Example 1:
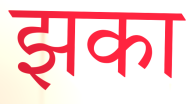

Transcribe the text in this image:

झका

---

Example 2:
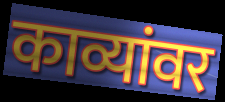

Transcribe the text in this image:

काव्यांवर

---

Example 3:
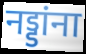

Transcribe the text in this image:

नड्डांना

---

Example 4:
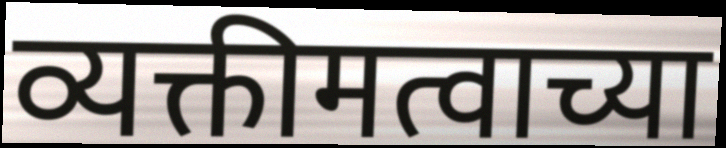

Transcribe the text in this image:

व्यक्तीमत्वाच्या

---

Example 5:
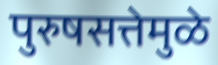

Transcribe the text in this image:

पुरुषसत्तेमुळे